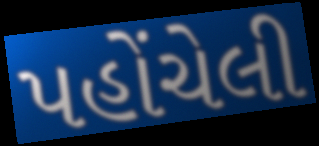
પહોંચેલી